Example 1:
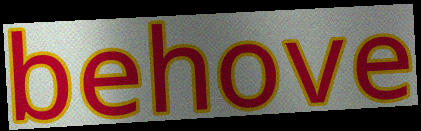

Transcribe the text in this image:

behove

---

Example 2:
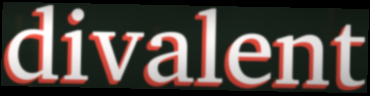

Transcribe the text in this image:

divalent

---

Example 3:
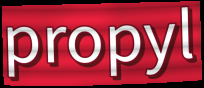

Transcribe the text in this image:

propyl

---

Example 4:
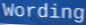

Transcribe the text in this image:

Wording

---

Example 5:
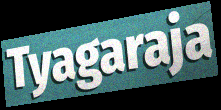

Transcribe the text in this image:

Tyagaraja